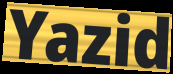
Yazid